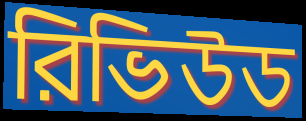
রিভিউড